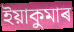
ইয়াকুমাৰ